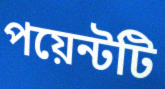
পয়েন্টটি